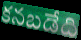
కనబడేది